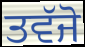
ਤਵੱਜੋ